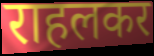
राहलकर